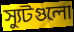
স্যুটগুলো